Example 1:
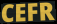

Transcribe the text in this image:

CEFR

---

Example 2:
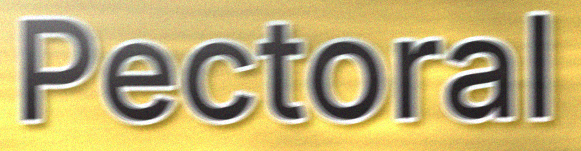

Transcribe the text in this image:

Pectoral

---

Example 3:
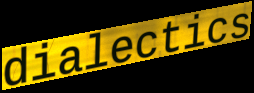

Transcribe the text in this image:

dialectics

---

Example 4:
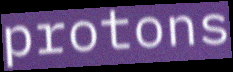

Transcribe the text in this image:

protons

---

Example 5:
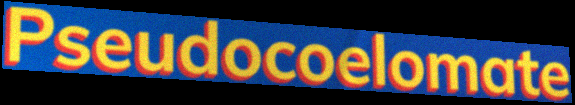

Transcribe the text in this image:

Pseudocoelomate